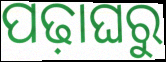
ପଢ଼ାଘରୁ